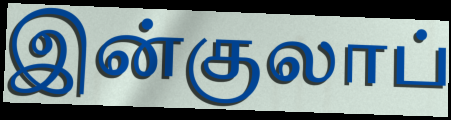
இன்குலாப்